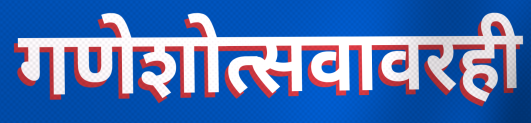
गणेशोत्सवावरही